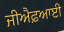
ਜੀਐਫ਼ਆਈ